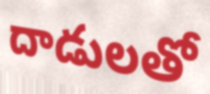
దాడులతో